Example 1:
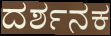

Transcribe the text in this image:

ದರ್ಶನಕ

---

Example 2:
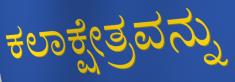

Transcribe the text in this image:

ಕಲಾಕ್ಷೇತ್ರವನ್ನು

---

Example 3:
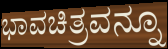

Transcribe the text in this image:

ಭಾವಚಿತ್ರವನ್ನೂ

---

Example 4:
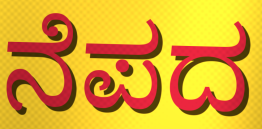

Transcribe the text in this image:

ನೆಪದ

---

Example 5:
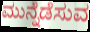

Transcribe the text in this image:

ಮುನ್ನೆಡೆಸುವ